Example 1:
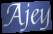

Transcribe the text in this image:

Ajey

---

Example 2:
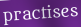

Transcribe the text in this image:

practises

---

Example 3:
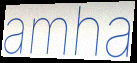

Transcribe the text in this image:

amha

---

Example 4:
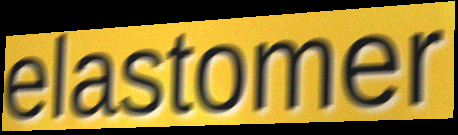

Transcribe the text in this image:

elastomer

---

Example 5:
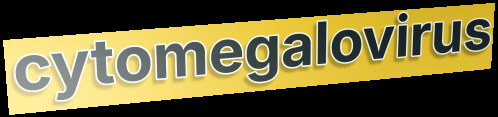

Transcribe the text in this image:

cytomegalovirus